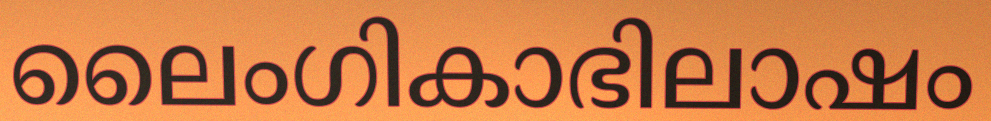
ലൈംഗികാഭിലാഷം